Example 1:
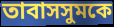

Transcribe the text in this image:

তাবাসসুমকে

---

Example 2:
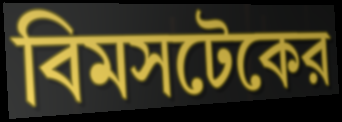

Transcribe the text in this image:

বিমসটেকের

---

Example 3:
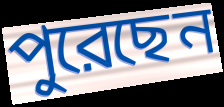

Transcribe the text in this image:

পুরেছেন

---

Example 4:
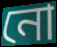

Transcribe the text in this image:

নো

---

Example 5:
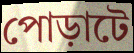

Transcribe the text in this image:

পোড়াটে